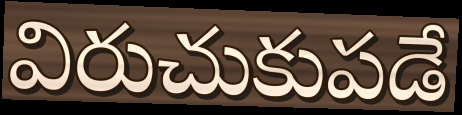
విరుచుకుపడే